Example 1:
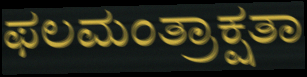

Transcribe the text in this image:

ಫಲಮಂತ್ರಾಕ್ಷತಾ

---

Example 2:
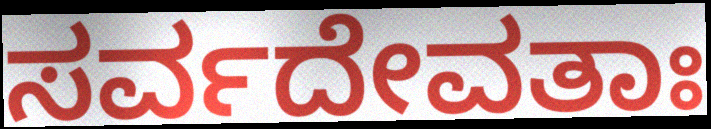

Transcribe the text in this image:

ಸರ್ವದೇವತಾಃ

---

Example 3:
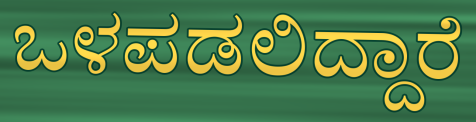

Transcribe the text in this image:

ಒಳಪಡಲಿದ್ದಾರೆ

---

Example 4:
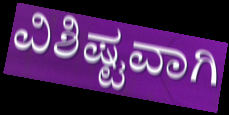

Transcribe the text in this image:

ವಿಶಿಷ್ಟವಾಗಿ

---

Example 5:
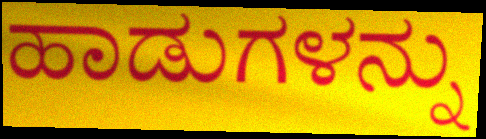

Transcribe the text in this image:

ಹಾಡುಗಳನ್ನು